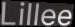
Lillee